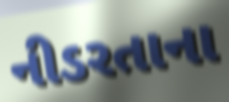
નીડરતાના